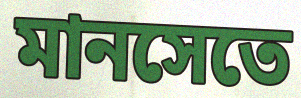
মানসেতে